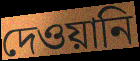
দেওয়ানি